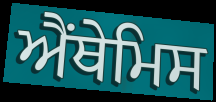
ਐਂਥੇਮਿਸ